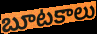
బూటకాలు